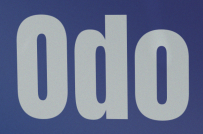
Odo